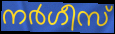
നർഗീസ്